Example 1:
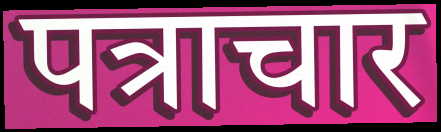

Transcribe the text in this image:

पत्राचार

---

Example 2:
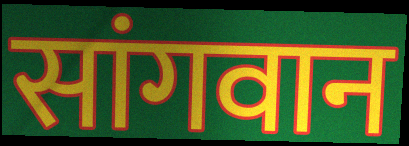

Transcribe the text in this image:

सांगवान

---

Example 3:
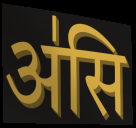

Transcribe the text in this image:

अ॑सि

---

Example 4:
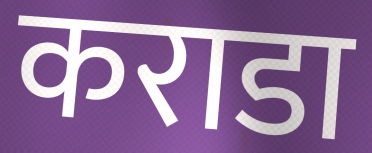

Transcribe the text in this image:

कराडा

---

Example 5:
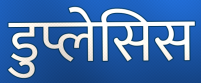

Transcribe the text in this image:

डुप्लेसिस